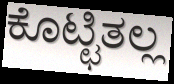
ಕೊಟ್ಟಿತಲ್ಲ